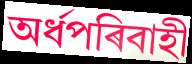
অৰ্ধপৰিবাহী